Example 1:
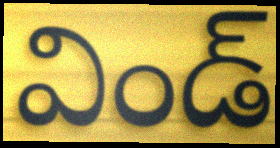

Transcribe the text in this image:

విండ్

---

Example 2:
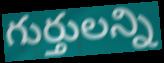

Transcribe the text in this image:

గుర్తులన్ని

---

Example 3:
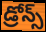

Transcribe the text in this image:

డ్రోన్స్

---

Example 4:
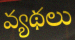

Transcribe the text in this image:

వ్యథలు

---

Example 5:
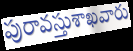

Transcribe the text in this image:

పురావస్తుశాఖవారు